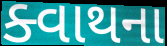
ક્વાથના